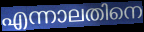
എന്നാലതിനെ